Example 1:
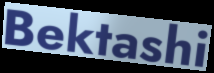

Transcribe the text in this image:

Bektashi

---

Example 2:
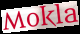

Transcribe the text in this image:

Mokla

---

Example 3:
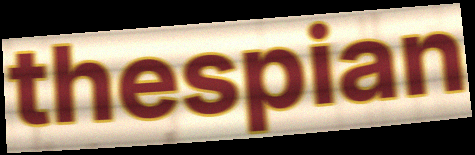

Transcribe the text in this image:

thespian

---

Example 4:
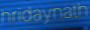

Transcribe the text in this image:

hridaynath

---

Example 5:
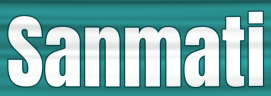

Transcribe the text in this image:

Sanmati